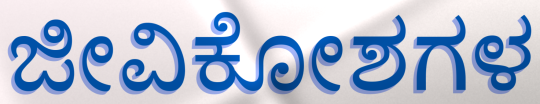
ಜೀವಿಕೋಶಗಳ